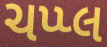
ચપ્પ્લ